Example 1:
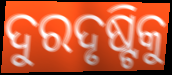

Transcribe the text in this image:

ଦୁରଦୃଷ୍ଟିକୁ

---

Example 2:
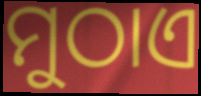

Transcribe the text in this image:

ମୁଠାଏ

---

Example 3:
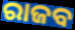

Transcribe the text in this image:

ରାଜବ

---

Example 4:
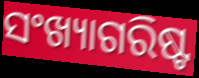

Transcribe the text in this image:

ସଂଖ୍ୟାଗରିଷ୍ଟ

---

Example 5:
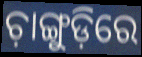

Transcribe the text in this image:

ଚ଼ାଙ୍ଗୁଡ଼ିରେ